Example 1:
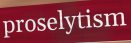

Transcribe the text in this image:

proselytism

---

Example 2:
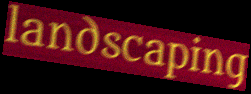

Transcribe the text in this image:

landscaping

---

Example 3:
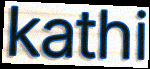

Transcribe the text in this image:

kathi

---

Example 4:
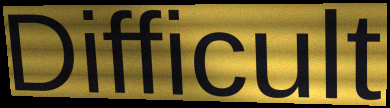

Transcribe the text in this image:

Difficult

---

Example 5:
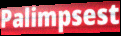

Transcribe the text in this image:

Palimpsest